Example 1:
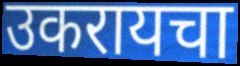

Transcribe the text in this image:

उकरायचा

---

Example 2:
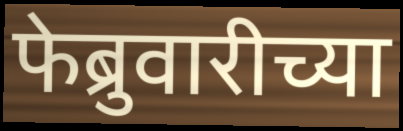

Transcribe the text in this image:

फेब्रुवारीच्या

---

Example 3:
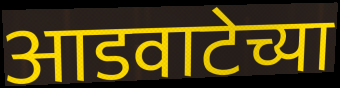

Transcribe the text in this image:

आडवाटेच्या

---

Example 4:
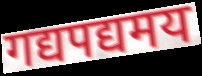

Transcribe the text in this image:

गद्यपद्यमय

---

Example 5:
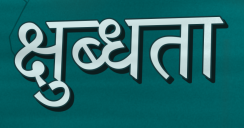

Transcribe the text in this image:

क्षुब्धता